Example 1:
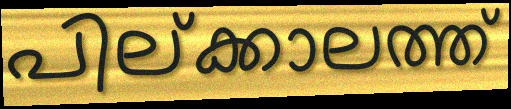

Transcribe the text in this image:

പില്ക്കാലത്ത്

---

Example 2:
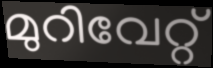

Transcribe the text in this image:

മുറിവേറ്റ്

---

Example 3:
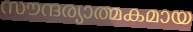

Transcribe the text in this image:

സൗന്ദര്യാത്മകമായ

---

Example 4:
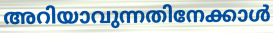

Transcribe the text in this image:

അറിയാവുന്നതിനേക്കാൾ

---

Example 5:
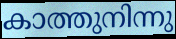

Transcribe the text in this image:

കാത്തുനിന്നു